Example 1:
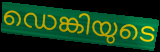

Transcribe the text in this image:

ഡെങ്കിയുടെ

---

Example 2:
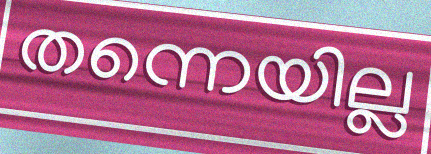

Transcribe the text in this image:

തന്നെയില്ല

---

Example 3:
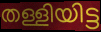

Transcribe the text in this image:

തള്ളിയിട്ട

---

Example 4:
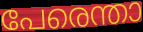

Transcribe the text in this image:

പേരെന്താ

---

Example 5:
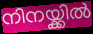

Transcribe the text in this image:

നിനയ്ക്കിൽ